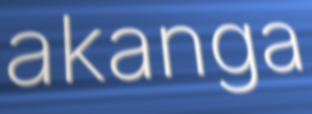
akanga